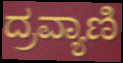
ದ್ರವ್ಯಾಣಿ